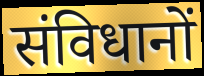
संविधानों